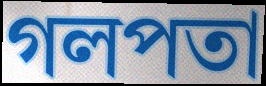
গলপতা